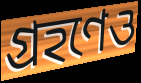
গ্রহণেও